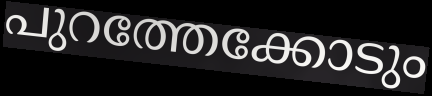
പുറത്തേക്കോടും